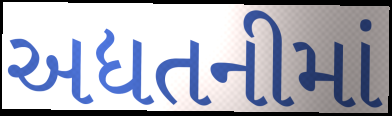
અદ્યતનીમાં